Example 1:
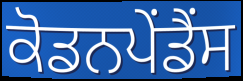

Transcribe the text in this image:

ਕੋਡਨਪੇਂਡੈਂਸ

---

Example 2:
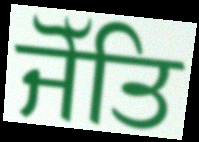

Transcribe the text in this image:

ਜੋੱਤਿ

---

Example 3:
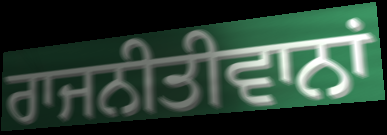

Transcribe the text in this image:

ਰਾਜਨੀਤੀਵਾਨਾਂ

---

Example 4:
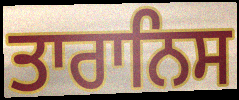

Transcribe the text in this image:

ਤਾਰਾਨਿਸ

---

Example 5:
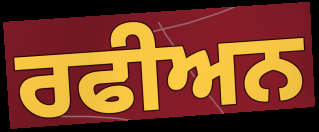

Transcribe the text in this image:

ਰਫੀਅਨ